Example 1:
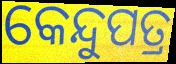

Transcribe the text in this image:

କେନ୍ଦୁପତ୍ର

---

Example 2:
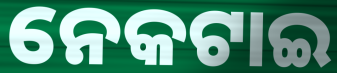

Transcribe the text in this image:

ନେକଟାଇ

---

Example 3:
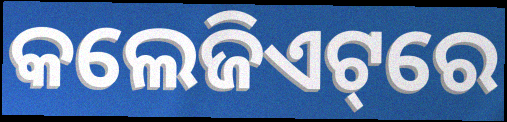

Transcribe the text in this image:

କଲେଜିଏଟ୍‌ରେ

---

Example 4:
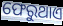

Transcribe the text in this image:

ଫେରୁଥାଏ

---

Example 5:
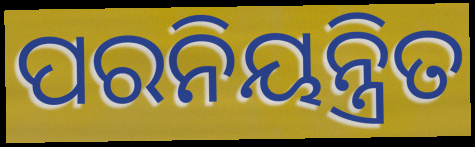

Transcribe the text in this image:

ପରନିୟନ୍ତ୍ରିତ